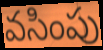
వసింపు